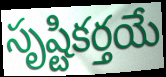
సృష్టికర్తయే